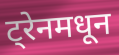
ट्रेनमधून